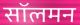
सॉलमन